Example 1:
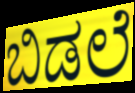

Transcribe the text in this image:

ಬಿಡಲೆ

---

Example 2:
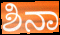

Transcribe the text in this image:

ಶಿನಾ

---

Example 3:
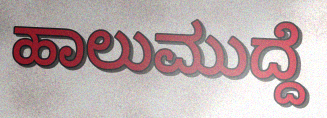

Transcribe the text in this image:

ಹಾಲುಮುದ್ದೆ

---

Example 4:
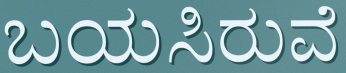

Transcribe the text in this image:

ಬಯಸಿರುವೆ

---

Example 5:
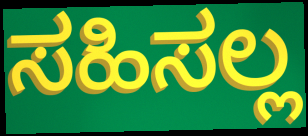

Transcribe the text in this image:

ಸಹಿಸಲ್ಲ